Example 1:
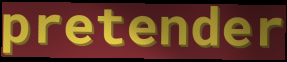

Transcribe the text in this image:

pretender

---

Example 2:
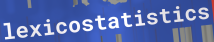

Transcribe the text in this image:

lexicostatistics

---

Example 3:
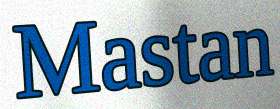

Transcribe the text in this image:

Mastan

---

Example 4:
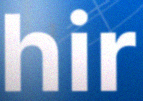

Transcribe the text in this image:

hir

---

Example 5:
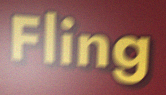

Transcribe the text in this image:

Fling